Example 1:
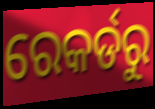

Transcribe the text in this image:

ରେକର୍ଡରୁ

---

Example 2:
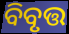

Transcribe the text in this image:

ବିବୃତ୍ତ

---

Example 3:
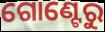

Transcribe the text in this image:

ଗୋଣ୍ଟେରୁ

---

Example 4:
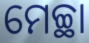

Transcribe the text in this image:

ମେଚ୍ଛା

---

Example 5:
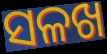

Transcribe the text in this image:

ସଳଖ